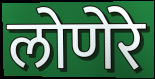
लोणेरे